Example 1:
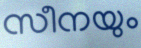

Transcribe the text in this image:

സീനയും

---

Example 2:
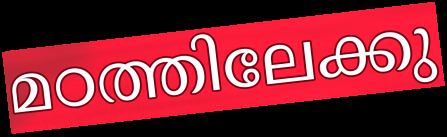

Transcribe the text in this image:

മഠത്തിലേക്കു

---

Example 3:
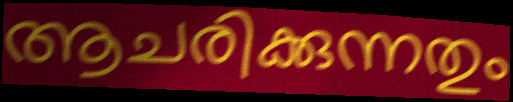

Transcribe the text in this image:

ആചരിക്കുന്നതും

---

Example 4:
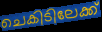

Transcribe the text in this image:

ചെകിടിലേക്ക്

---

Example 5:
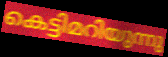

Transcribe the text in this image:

കെട്ടിമറിയുന്നു